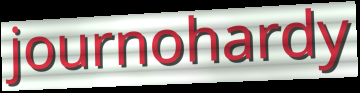
journohardy